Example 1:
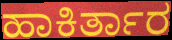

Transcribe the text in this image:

ಹಾಕಿರ್ತಾರ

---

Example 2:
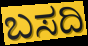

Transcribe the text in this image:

ಬಸದಿ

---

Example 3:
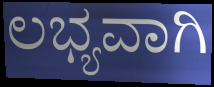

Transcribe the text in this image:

ಲಭ್ಯವಾಗಿ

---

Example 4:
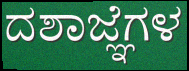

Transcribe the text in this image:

ದಶಾಜ್ಞೆಗಳ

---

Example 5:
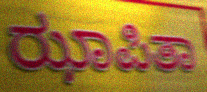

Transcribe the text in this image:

ಝಾಪಿತಾ